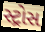
સ્ટ્રોસ